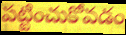
పట్టించుకోవడం